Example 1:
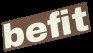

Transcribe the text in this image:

befit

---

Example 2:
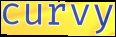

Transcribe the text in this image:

curvy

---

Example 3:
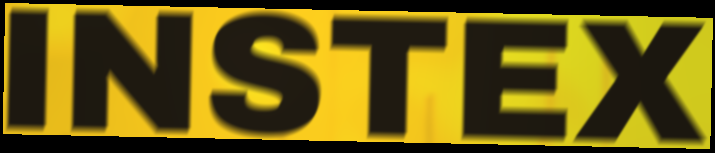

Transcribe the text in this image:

INSTEX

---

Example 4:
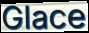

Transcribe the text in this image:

Glace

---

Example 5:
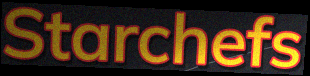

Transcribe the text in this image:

Starchefs